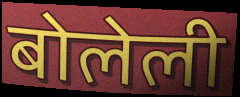
बोलेली